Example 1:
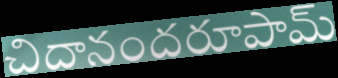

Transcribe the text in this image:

చిదానందరూపామ్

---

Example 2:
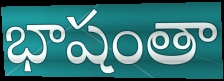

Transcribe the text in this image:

భాషంతా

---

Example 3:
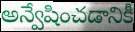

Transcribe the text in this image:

అన్వేషించడానికీ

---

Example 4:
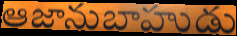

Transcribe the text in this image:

ఆజానుబాహుడు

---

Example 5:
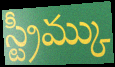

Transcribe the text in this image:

స్ట్రీమ్కు